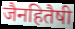
जैनहितैषी